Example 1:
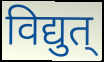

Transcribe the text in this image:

विद्युत्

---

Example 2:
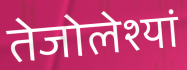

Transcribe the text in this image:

तेजोलेश्यां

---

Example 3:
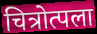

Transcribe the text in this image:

चित्रोत्पला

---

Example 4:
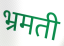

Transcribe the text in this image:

भ्रमती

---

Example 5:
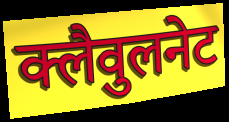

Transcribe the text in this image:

क्लैवुलनेट